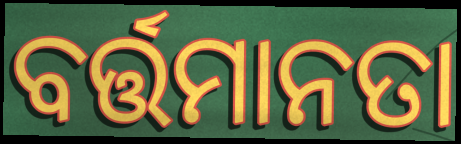
ବର୍ତ୍ତମାନତା